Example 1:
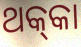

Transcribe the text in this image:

ଥକ୍‌କା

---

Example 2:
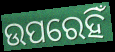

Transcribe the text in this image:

ଉପରେହିଁ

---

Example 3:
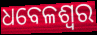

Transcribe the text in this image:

ଧବେଳଶ୍ୱର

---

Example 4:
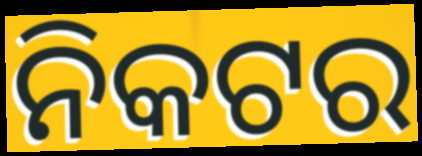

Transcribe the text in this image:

ନିକଟର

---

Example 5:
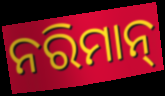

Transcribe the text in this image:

ନରିମାନ୍